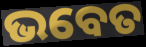
ଭବେତ